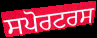
ਸਪੋਰਟਰਸ